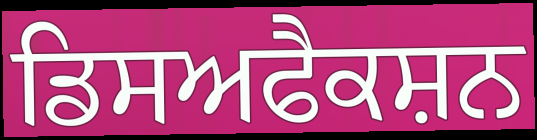
ਡਿਸਅਫੈਕਸ਼ਨ